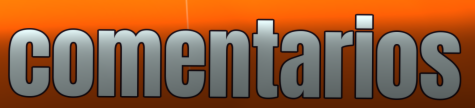
comentarios